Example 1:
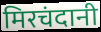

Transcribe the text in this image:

मिरचंदानी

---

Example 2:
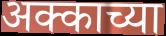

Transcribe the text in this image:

अक्काच्या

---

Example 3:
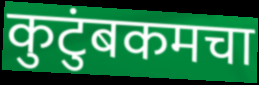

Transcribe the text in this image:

कुटुंबकमचा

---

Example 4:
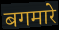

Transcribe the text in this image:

बगमारे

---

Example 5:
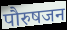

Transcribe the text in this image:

पौरुषजन